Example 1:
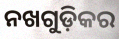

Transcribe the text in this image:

ନଖଗୁଡ଼ିକର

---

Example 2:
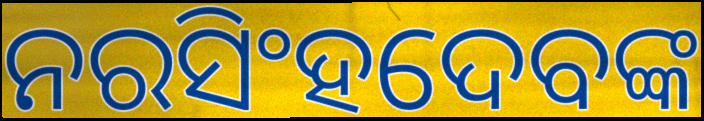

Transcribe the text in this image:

ନରସିଂହଦେବଙ୍କ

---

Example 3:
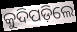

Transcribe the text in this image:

କୁଦିପଡ଼ିଲେ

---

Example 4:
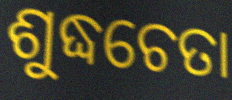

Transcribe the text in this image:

ଶୁଦ୍ଧଚେତା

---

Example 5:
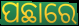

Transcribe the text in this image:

ପଛାରେ